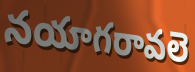
నయాగరావలె